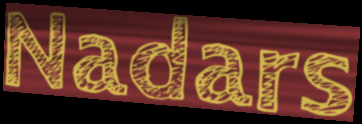
Nadars